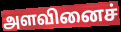
அளவினைச்